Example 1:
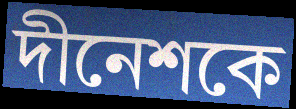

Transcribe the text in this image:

দীনেশকে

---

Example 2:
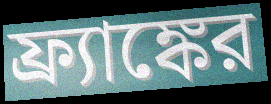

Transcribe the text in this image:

ফ্র্যাঙ্কের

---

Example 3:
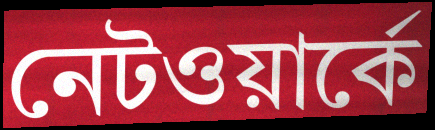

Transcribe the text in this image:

নেটওয়ার্কে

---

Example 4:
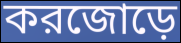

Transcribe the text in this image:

করজোড়ে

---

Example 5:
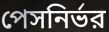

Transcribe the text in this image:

পেসনির্ভর